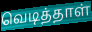
வெடித்தாள்